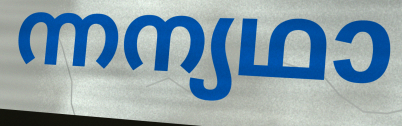
ന്നന്യഥാ